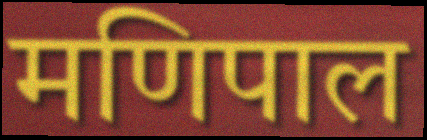
मणिपाल